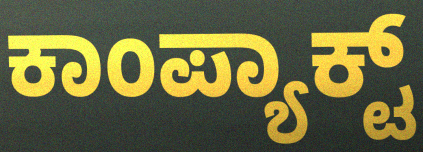
ಕಾಂಪ್ಯಾಕ್ಟ್